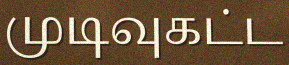
முடிவுகட்ட